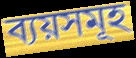
ব্যয়সমূহ